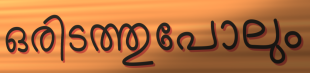
ഒരിടത്തുപോലും